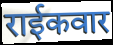
राईकवार